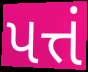
પત્તં